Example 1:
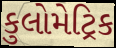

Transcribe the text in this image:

કુલોમેટ્રિક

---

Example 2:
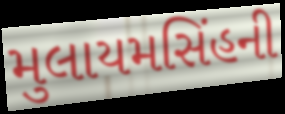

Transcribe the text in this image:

મુલાયમસિંહની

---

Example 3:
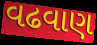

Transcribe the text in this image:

વઢવાણ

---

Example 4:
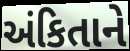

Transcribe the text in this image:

અંકિતાને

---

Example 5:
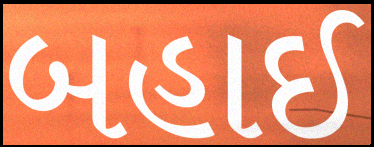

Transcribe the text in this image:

બહાઈ